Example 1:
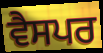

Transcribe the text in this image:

ਵੈਸਪਰ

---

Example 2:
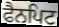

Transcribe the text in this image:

ਫੈਨਪਿਟ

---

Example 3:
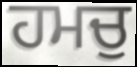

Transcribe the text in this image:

ਹਮਚੁ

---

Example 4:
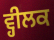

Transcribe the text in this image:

ਵ੍ਹੀਲਕ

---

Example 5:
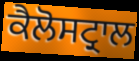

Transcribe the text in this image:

ਕੈਲੋਸਟ੍ਰਾਲ